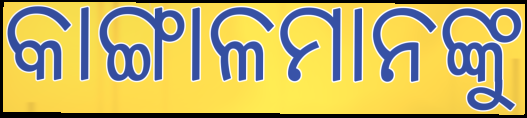
କାଙ୍ଗାଳମାନଙ୍କୁ